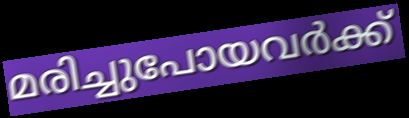
മരിച്ചുപോയവർക്ക്